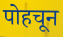
पोहचून